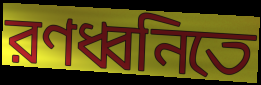
রণধ্বনিতে